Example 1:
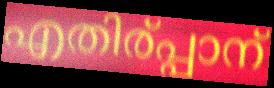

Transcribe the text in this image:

എതിര്പ്പാന്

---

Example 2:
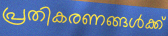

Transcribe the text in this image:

പ്രതികരണങ്ങൾക്ക്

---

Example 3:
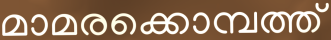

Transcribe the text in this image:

മാമരക്കൊമ്പത്ത്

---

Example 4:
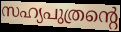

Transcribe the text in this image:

സഹ്യപുത്രന്റെ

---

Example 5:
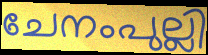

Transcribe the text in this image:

ചേനംപുല്ലി